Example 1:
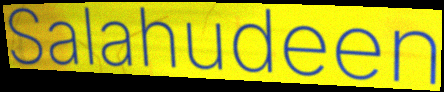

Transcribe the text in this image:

Salahudeen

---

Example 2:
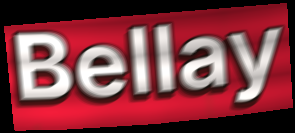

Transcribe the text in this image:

Bellay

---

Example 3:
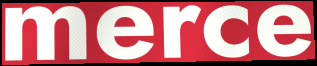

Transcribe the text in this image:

merce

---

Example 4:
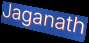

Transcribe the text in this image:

Jaganath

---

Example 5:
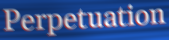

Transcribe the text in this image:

Perpetuation